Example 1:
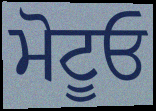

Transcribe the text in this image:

ਮੋਟੂਓ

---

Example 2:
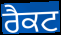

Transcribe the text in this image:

ਰੈਕਟ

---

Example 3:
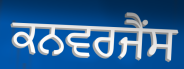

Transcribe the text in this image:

ਕਨਵਰਜੈਂਸ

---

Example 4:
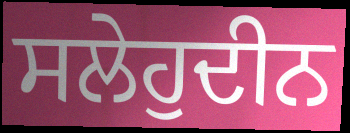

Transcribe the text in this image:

ਸਲੇਹੁਦੀਨ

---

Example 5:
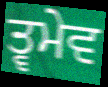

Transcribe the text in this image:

ਤ੍ਵਮੇਵ